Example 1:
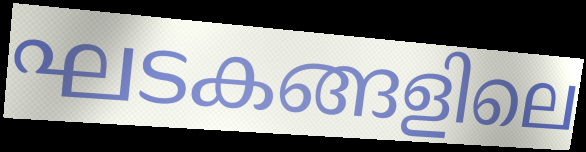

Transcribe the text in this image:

ഘടകങ്ങളിലെ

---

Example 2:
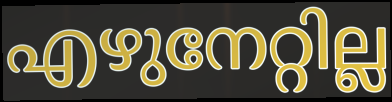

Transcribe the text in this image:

എഴുനേറ്റില്ല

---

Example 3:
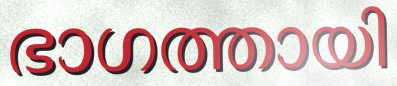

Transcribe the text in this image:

ഭാഗത്തായി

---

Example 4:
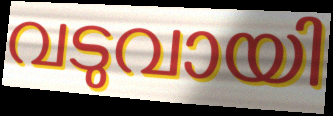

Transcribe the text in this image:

വടുവായി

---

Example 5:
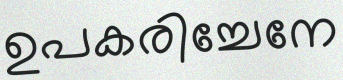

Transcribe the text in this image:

ഉപകരിച്ചേനേ